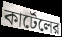
কার্টেলের